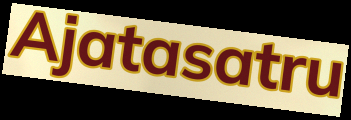
Ajatasatru